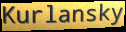
Kurlansky